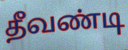
தீவண்டி